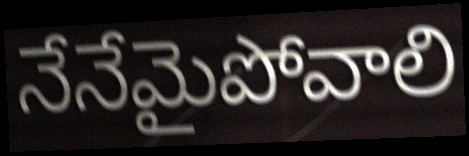
నేనేమైపోవాలి